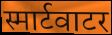
स्मार्टवाटर